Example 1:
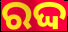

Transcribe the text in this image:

ରଦ୍ଦ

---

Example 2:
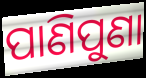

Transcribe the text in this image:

ପାଣିପୁଣା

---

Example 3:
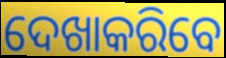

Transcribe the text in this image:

ଦେଖାକରିବେ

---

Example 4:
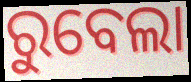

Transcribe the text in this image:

ରୁବେଲା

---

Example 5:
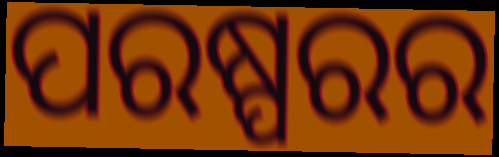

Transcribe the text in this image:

ପରଷ୍ପରର